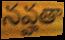
నవ్హతా